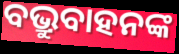
ବଭ୍ରୁବାହନଙ୍କ